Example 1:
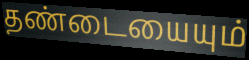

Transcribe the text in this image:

தண்டையையும்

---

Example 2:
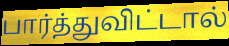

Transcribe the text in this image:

பார்த்துவிட்டால்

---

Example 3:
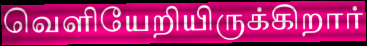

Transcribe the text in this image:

வெளியேறியிருக்கிறார்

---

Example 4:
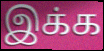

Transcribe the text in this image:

இக்க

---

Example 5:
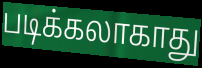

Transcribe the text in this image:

படிக்கலாகாது